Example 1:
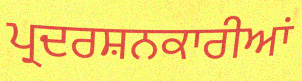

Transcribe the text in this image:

ਪ੍ਰਦਰਸ਼ਨਕਾਰੀਆਂ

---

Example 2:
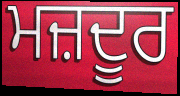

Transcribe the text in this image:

ਮਜ਼ਦੂਰ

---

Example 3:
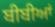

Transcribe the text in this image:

ਬੀਬੀਆਂ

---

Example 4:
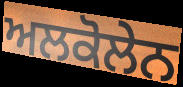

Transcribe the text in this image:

ਅਲਕੋਲੇਨ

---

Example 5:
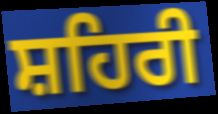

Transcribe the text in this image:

ਸ਼ਹਿਰੀ